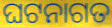
ଘଟନାଗତ